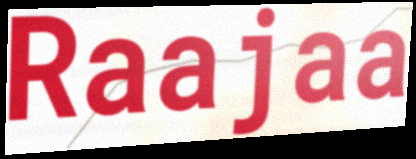
Raajaa